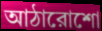
আঠারোশো